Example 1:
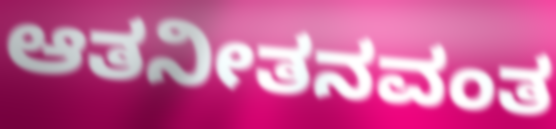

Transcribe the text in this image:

ಆತನೀತನವಂತ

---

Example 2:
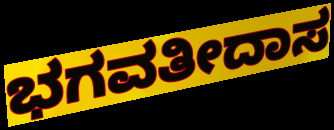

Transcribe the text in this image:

ಭಗವತೀದಾಸ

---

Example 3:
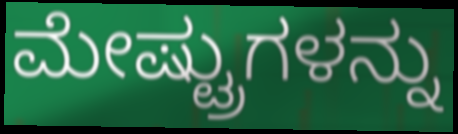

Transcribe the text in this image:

ಮೇಷ್ಟ್ರುಗಳನ್ನು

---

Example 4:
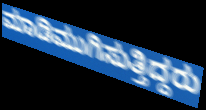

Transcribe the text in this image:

ಮಾಡಿಮುಗಿಸುತ್ತಿದ್ದರು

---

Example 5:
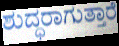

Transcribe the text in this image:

ಶುದ್ಧರಾಗುತ್ತಾರೆ